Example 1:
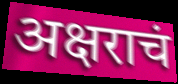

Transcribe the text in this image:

अक्षराचं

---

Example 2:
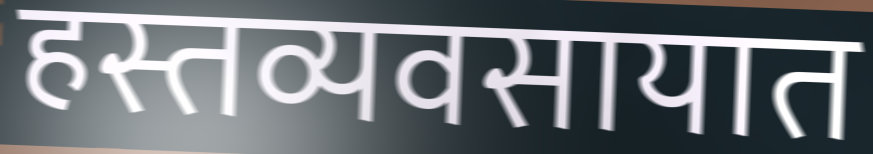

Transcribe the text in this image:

हस्तव्यवसायात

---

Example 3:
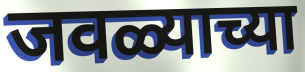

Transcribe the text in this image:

जवळ्याच्या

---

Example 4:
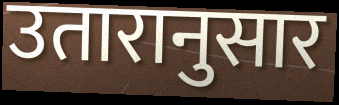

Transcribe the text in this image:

उतारानुसार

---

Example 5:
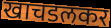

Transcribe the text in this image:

खाचडलकर